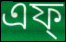
এফ্